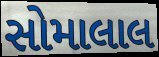
સોમાલાલ